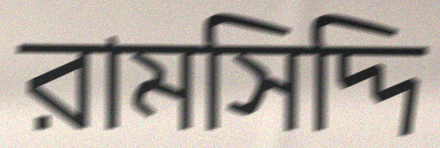
রামসিদ্দি